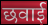
छवाई